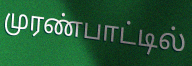
முரண்பாட்டில்